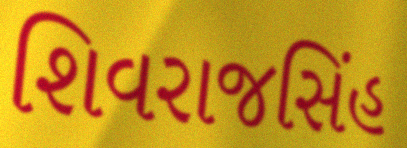
શિવરાજસિંહ